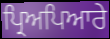
ਪ੍ਰਿਅਪਿਆਰੇ